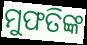
ମୁଫତିଙ୍କ